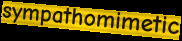
sympathomimetic